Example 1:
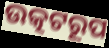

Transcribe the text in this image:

ଉତ୍କଟରୂପ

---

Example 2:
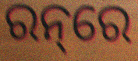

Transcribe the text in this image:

ରନ୍‌ରେ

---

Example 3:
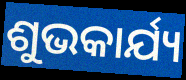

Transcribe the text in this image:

ଶୁଭକାର୍ଯ୍ୟ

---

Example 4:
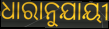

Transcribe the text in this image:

ଧାରାନୁଯାୟୀ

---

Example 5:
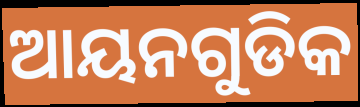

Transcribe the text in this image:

ଆୟନଗୁଡିକ